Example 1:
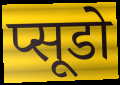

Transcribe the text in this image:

प्सूडो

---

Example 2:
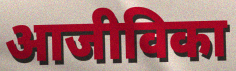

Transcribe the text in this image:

आजीविका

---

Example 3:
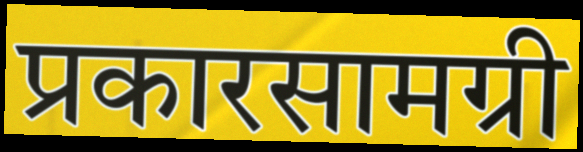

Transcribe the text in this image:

प्रकारसामग्री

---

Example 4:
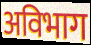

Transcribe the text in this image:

अविभाग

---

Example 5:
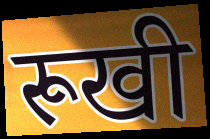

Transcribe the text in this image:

रूखी